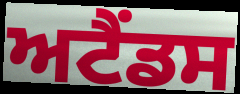
ਅਟੈਂਡਸ